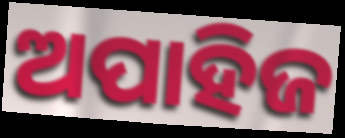
ଅପାହିଜ